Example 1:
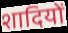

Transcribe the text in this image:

शादियों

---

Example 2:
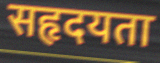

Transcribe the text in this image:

सहृदयता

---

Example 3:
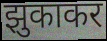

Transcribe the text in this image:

झुकाकर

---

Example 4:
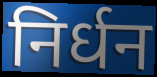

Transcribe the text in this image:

निर्धन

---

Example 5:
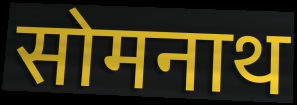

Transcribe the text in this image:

सोमनाथ